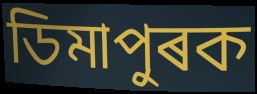
ডিমাপুৰক